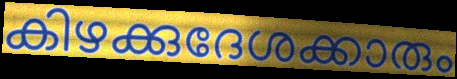
കിഴക്കുദേശക്കാരും